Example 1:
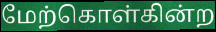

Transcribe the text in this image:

மேற்கொள்கின்ற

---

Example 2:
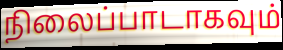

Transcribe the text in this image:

நிலைப்பாடாகவும்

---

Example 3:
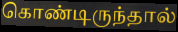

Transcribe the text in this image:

கொண்டிருந்தால்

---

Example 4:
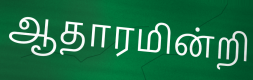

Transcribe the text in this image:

ஆதாரமின்றி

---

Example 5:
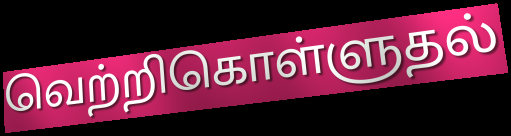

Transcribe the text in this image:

வெற்றிகொள்ளுதல்